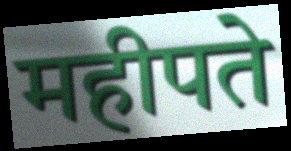
महीपते